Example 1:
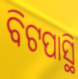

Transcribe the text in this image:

ବିଟପାସ୍ଥି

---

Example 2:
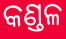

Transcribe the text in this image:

କଣ୍ଡଳ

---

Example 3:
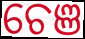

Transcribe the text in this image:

ଚେଞ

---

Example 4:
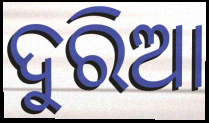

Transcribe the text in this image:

ଦୁରିଆ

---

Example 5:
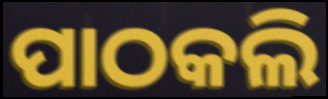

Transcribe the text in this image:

ପାଠକଲି